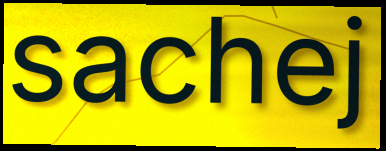
sachej